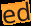
ed